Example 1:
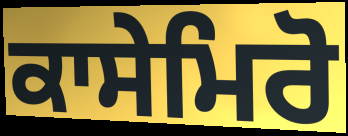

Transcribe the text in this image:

ਕਾਸੇਮਿਰੋ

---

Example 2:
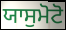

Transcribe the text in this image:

ਯਾਸੁਮੋਟੋ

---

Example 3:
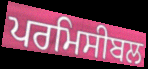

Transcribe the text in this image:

ਪਰਮਿਸੀਬਲ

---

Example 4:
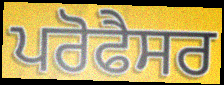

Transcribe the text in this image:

ਪਰੋਫੈਸਰ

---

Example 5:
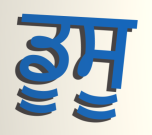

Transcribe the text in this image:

ਡੂਸੂ